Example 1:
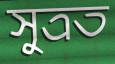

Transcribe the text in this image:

সুত্ৰত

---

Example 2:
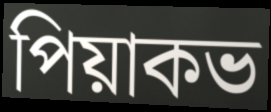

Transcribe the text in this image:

পিয়াকভ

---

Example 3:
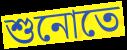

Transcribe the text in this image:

শুনোতে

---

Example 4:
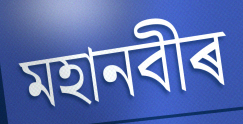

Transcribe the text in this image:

মহানবীৰ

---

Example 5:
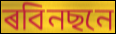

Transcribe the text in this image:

ৰবিনছনে